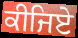
ਕੀਜਿਏ